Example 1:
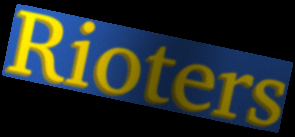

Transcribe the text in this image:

Rioters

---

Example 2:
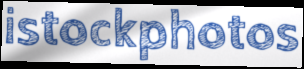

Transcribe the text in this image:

istockphotos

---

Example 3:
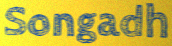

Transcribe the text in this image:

Songadh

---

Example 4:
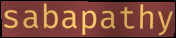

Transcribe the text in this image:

sabapathy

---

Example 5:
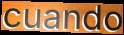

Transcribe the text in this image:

cuando